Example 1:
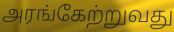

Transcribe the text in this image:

அரங்கேற்றுவது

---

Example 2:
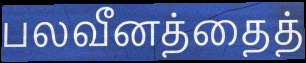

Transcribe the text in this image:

பலவீனத்தைத்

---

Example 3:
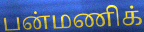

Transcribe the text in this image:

பன்மணிக்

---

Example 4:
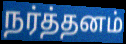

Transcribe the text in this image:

நர்த்தனம்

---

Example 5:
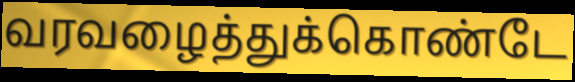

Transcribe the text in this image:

வரவழைத்துக்கொண்டே